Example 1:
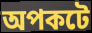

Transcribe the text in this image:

অপকটে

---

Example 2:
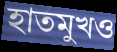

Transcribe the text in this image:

হাতমুখও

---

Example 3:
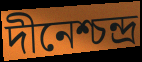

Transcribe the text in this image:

দীনেশ্চন্দ্র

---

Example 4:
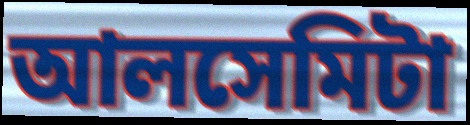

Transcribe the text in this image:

আলসেমিটা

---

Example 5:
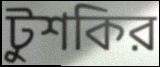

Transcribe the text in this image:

টুশকির